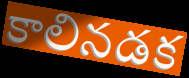
కాలినడక